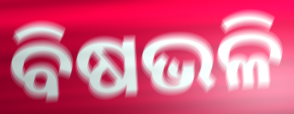
ବିଷଭଳି